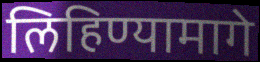
लिहिण्यामागे